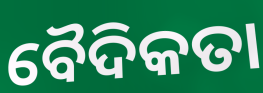
ବୈଦିକତା